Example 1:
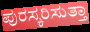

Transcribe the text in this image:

ಪುರಸ್ಕರಿಸುತ್ತಾ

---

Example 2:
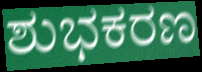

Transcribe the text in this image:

ಶುಭಕರಣ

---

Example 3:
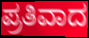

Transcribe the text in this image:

ಪ್ರತಿವಾದ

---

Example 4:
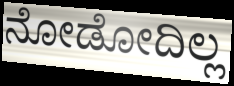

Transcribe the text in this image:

ನೋಡೋದಿಲ್ಲ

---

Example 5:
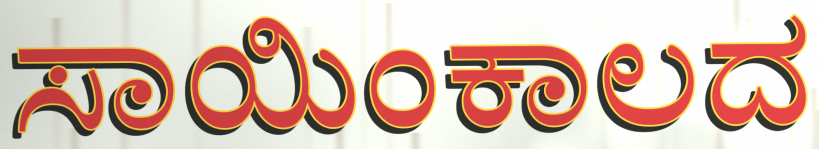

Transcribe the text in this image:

ಸಾಯಿಂಕಾಲದ